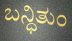
ಬನ್ಧಿತುಂ